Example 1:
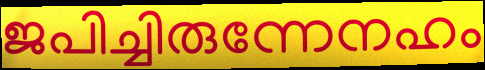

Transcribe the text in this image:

ജപിച്ചിരുന്നേനഹം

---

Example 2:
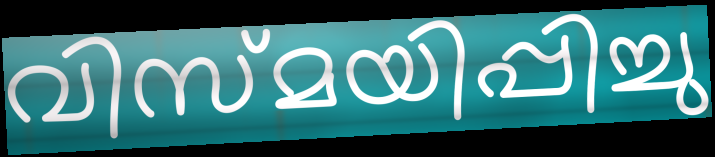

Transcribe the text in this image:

വിസ്മയിപ്പിച്ചു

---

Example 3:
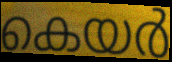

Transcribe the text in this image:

കെയർ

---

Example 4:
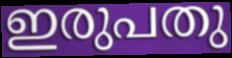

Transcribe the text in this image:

ഇരുപതു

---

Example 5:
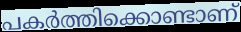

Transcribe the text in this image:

പകർത്തിക്കൊണ്ടാണ്